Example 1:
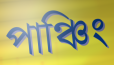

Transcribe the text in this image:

পাঞ্চিং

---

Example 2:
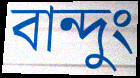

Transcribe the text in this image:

বান্দুং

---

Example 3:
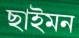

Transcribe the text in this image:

ছাইমন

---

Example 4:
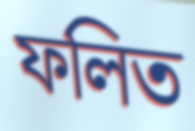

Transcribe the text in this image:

ফলিত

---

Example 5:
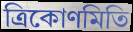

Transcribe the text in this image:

ত্ৰিকোণমিতি